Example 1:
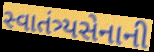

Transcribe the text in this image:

સ્વાતંત્ર્યસેનાની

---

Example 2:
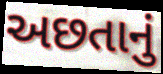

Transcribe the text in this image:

અછતાનું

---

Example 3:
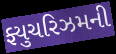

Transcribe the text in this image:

ફ્યુચરિઝમની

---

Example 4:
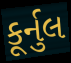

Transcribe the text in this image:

કૂર્નુલ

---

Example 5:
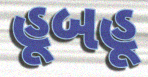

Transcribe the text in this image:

હૂબહૂ